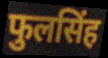
फुलसिंह